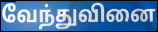
வேந்துவினை